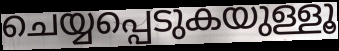
ചെയ്യപ്പെടുകയുള്ളൂ